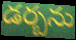
డర్బను